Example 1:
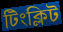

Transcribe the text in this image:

টিংক্লিট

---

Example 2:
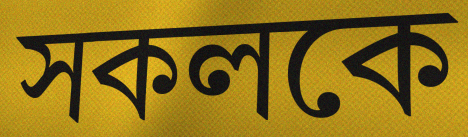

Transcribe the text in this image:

সকলকে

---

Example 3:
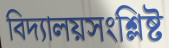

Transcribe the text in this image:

বিদ্যালয়সংশ্লিষ্ট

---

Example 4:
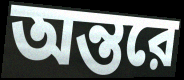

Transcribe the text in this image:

অন্তরে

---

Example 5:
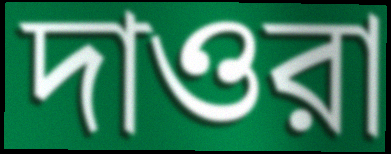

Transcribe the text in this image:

দাওরা